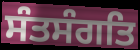
ਸੰਤਸੰਗਤਿ